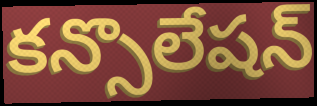
కన్సొలేషన్